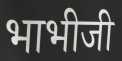
भाभीजी